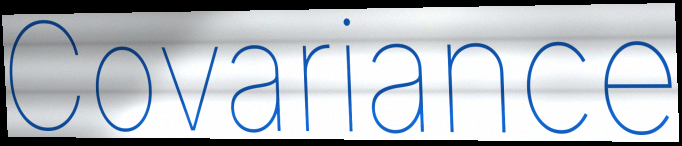
Covariance